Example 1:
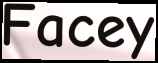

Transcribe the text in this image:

Facey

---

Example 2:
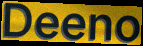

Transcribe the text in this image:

Deeno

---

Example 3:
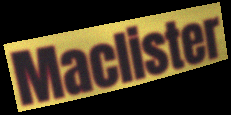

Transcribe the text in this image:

Maclister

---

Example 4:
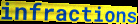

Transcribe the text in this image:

infractions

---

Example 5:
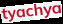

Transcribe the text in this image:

tyachya